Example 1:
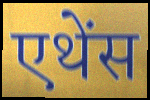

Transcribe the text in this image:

एथेंस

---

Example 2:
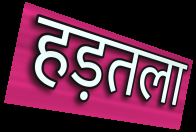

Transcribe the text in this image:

हड़तला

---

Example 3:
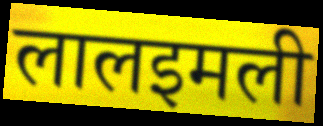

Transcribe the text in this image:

लालइमली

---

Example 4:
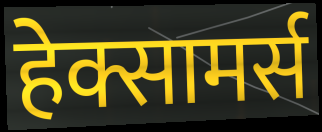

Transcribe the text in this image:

हेक्सामर्स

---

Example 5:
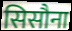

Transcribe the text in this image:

सिसौना